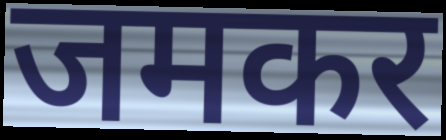
जमकर